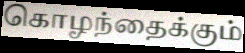
கொழந்தைக்கும்